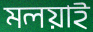
মলয়াই